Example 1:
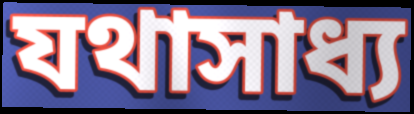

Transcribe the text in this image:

যথাসাধ্য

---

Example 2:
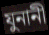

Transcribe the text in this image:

যুনানী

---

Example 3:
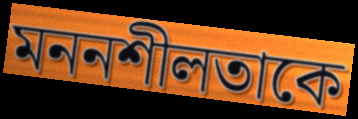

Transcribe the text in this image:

মননশীলতাকে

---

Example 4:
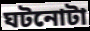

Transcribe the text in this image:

ঘটনোটা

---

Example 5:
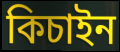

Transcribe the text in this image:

কিচাইন